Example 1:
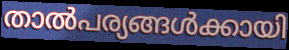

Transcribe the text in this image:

താൽപര്യങ്ങൾക്കായി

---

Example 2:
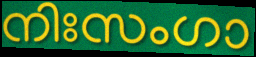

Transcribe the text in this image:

നിഃസംഗാ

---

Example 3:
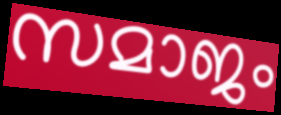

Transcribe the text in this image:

സമാജം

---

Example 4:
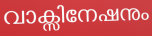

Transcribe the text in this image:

വാക്സിനേഷനും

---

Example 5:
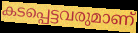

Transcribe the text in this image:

കടപ്പെട്ടവരുമാണ്